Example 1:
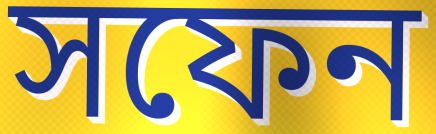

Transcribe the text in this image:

সফেন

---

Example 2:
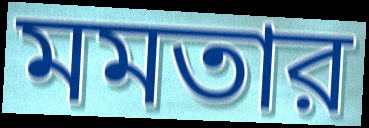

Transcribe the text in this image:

মমতার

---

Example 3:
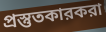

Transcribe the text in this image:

প্রস্তুতকারকরা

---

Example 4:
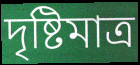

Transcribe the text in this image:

দৃষ্টিমাত্র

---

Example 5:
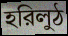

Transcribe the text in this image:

হরিলুঠ